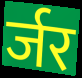
र्जर